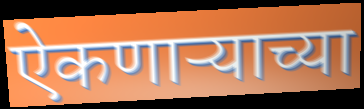
ऐकणाऱ्याच्या